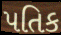
પતિક